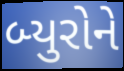
બ્યુરોને